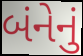
બંનેનું